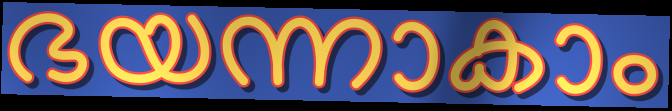
ഭയന്നാകാം